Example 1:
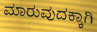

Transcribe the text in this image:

ಮಾರುವುದಕ್ಕಾಗಿ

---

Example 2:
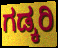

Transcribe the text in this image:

ಗಡ್ಕರಿ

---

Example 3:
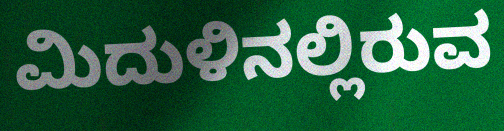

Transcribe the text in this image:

ಮಿದುಳಿನಲ್ಲಿರುವ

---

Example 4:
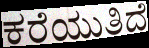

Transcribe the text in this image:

ಕರೆಯುತಿದೆ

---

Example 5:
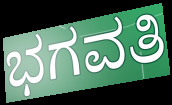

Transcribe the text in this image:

ಭಗವತಿ